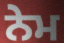
ਨੇਮ